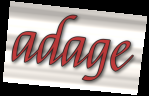
adage